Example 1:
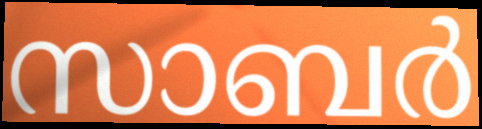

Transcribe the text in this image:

സാബർ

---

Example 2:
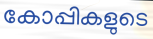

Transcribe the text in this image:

കോപ്പികളുടെ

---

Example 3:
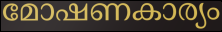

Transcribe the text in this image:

മോഷണകാര്യം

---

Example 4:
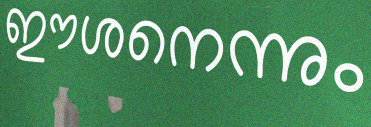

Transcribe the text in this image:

ഈശനെന്നും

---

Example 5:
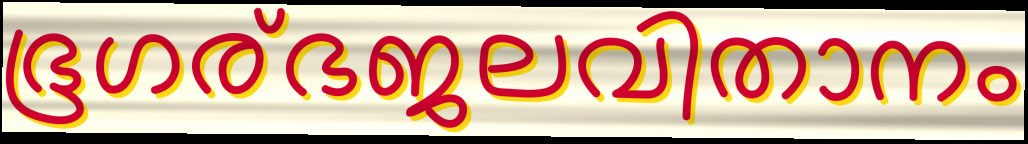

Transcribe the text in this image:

ഭൂഗര്ഭജലവിതാനം